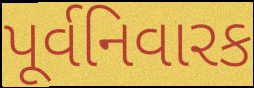
પૂર્વનિવારક